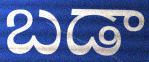
బడా